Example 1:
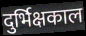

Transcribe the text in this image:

दुर्भिक्षकाल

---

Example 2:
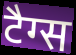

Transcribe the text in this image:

टैग्स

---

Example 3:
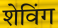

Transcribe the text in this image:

शेविंग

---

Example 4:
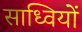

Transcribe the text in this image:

साध्वियों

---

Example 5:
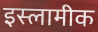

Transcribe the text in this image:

इस्लामीक